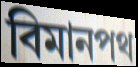
বিমানপথ